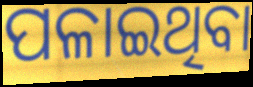
ପଳାଇଥିବା